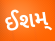
ઈશમ્